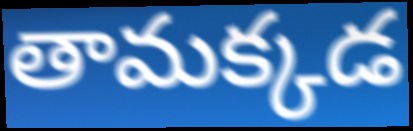
తామక్కడ